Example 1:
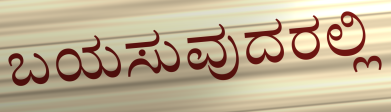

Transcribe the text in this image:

ಬಯಸುವುದರಲ್ಲಿ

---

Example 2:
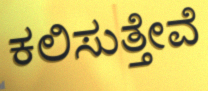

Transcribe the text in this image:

ಕಲಿಸುತ್ತೇವೆ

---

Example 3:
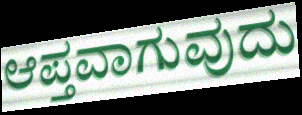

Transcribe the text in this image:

ಆಪ್ತವಾಗುವುದು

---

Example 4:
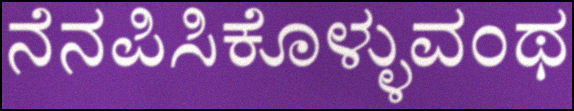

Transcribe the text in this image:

ನೆನಪಿಸಿಕೊಳ್ಳುವಂಥ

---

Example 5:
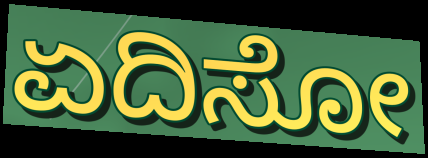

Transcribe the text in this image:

ಏದಿಸೋ